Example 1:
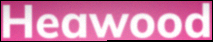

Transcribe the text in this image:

Heawood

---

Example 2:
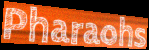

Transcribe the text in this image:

Pharaohs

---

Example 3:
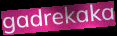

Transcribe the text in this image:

gadrekaka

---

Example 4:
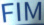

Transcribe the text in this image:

FIM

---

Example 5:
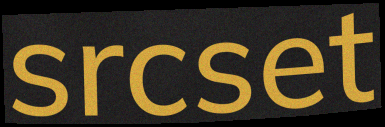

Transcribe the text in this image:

srcset